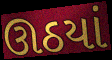
ઊઠયાં